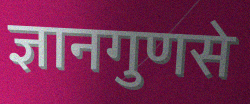
ज्ञानगुणसे